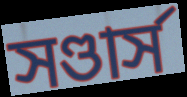
সণ্ডার্স